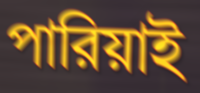
পারিয়াই